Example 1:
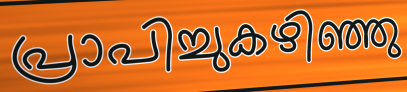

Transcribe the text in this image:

പ്രാപിച്ചുകഴിഞ്ഞു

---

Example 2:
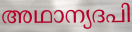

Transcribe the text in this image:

അഥാന്യദപി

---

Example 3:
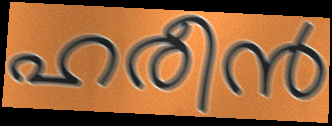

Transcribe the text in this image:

ഹരീൻ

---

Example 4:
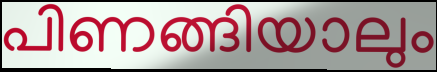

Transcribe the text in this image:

പിണങ്ങിയാലും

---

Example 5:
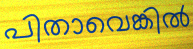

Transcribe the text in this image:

പിതാവെങ്കിൽ